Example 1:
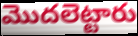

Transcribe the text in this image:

మొదలెట్టారు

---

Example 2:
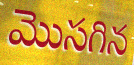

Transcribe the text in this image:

మొసగిన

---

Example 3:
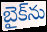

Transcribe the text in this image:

బైక్‌ను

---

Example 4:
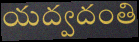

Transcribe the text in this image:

యద్వదంతి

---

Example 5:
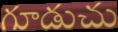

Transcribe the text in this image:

గూడుచు